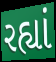
રહ્યાં